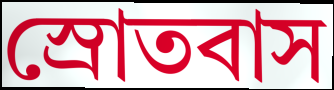
স্রোতবাস